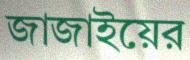
জাজাইয়ের